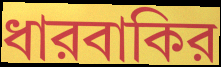
ধারবাকির